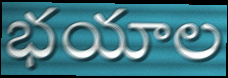
భయాల